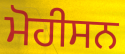
ਮੋਹੀਸਨ